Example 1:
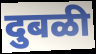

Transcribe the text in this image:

दुबळी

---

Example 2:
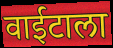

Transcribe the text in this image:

वाईटाला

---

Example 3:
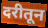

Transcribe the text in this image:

दरीतून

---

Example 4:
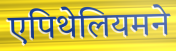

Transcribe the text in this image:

एपिथेलियमने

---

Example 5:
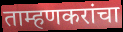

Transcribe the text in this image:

ताम्हणकरांचा